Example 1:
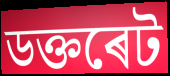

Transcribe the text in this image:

ডক্তৰেট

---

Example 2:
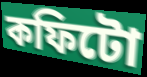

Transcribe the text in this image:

কফিটো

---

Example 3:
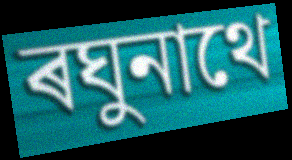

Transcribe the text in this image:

ৰঘুনাথে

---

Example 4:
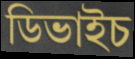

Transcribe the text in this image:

ডিভাইচ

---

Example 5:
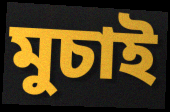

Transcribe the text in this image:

মুচাই